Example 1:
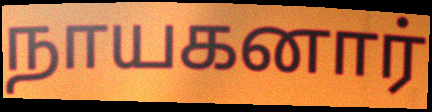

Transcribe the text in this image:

நாயகனார்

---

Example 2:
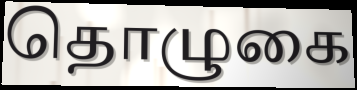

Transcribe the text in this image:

தொழுகை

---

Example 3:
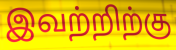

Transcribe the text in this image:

இவற்றிற்கு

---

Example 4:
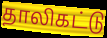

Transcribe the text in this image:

தாலிகட்டு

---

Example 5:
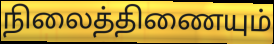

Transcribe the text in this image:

நிலைத்திணையும்